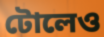
টোলেও